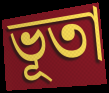
ভূতা